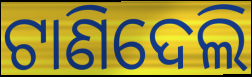
ଟାଣିଦେଲି